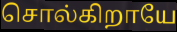
சொல்கிறாயே